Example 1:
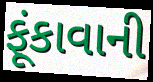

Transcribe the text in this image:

ફૂંકાવાની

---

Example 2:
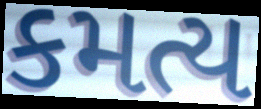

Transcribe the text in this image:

કમત્ય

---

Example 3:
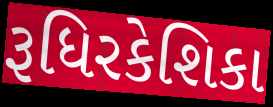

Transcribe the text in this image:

રૂધિરકેશિકા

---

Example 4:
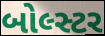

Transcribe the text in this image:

બોલ્સ્ટર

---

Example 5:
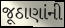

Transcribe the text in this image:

જૂઠાણાંની